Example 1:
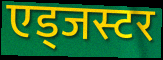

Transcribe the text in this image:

एड्जस्टर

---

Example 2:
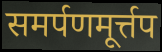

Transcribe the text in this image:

समर्पणमूर्त्तप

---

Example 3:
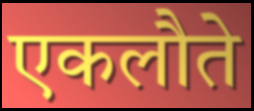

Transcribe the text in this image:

एकलौते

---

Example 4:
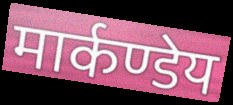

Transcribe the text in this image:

मार्कण्डेय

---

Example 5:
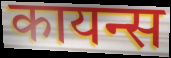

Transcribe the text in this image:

कायन्स